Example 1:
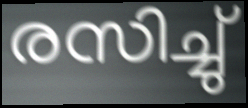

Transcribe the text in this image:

രസിച്ചു്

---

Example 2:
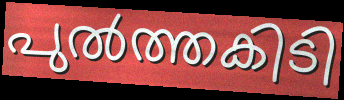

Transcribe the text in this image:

പുൽത്തകിടി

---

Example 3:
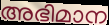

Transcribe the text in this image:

അഭിമാന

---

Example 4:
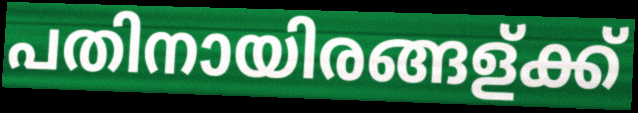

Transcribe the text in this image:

പതിനായിരങ്ങള്ക്ക്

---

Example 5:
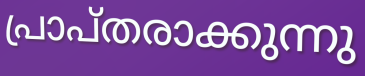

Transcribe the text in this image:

പ്രാപ്തരാക്കുന്നു